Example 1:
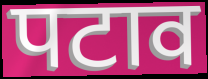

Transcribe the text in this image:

पटाव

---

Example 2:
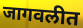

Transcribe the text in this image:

जागवलीत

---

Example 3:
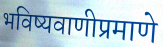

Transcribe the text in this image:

भविष्यवाणीप्रमाणे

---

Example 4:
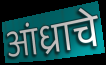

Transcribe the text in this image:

आंध्राचे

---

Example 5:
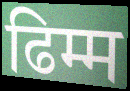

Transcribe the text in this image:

ढिम्म